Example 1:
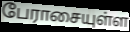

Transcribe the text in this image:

பேராசையுள்ள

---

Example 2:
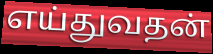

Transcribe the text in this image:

எய்துவதன்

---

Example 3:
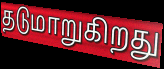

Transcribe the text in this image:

தடுமாறுகிறது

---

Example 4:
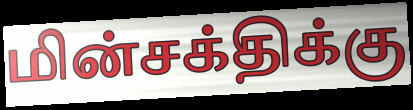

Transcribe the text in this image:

மின்சக்திக்கு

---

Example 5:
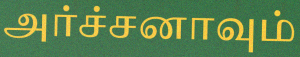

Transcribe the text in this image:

அர்ச்சனாவும்